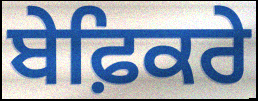
ਬੇਫ਼ਿਕਰੇ